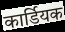
कार्डियक